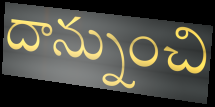
దాన్నుంచి